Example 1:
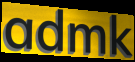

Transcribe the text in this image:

admk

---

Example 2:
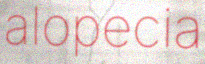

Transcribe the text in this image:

alopecia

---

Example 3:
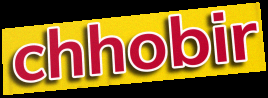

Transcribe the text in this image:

chhobir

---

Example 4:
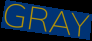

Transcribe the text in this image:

GRAY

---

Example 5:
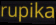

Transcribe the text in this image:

rupika